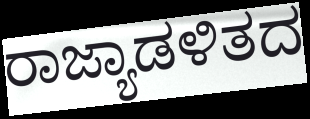
ರಾಜ್ಯಾಡಳಿತದ